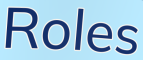
Roles